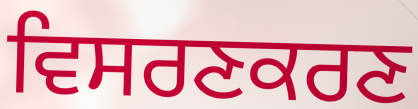
ਵਿਸਰਣਕਰਣ